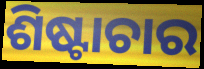
ଶିଷ୍ଟାଚାର